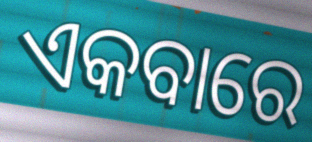
ଏକବାରେ